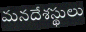
మనదేశస్థులు